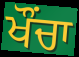
ਖੌੰਚਾ